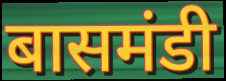
बासमंडी